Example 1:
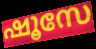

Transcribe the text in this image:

ഷൂസേ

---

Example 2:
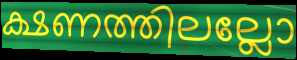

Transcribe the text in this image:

ക്ഷണത്തിലല്ലോ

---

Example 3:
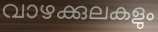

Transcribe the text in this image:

വാഴക്കുലകളും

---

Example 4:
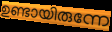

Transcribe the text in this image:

ഉണ്ടായിരുന്നേ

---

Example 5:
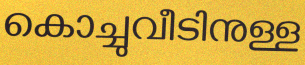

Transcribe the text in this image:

കൊച്ചുവീടിനുള്ള